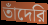
তাঁদেরি